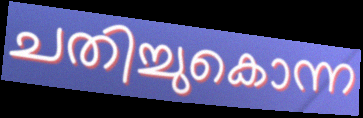
ചതിച്ചുകൊന്ന